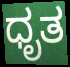
ಧೃತ